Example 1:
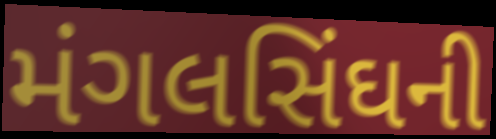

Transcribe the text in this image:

મંગલસિંઘની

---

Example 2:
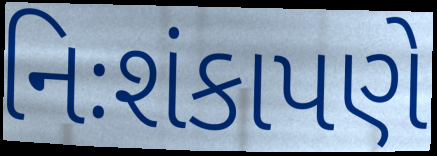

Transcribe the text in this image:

નિઃશંકાપણે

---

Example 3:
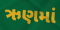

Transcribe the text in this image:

ઋણમાં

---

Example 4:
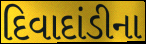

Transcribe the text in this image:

દિવાદાંડીના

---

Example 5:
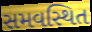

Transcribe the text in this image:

સમવસ્થિત